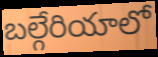
బల్గేరియాలో